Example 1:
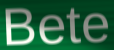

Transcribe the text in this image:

Bete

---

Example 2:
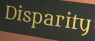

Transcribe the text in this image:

Disparity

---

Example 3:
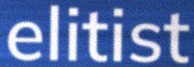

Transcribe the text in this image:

elitist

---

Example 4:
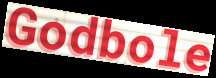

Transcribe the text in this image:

Godbole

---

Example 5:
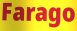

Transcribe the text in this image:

Farago